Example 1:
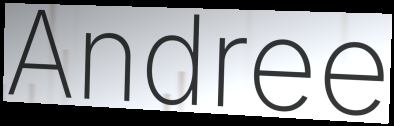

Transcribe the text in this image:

Andree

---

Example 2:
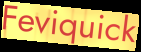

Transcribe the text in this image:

Feviquick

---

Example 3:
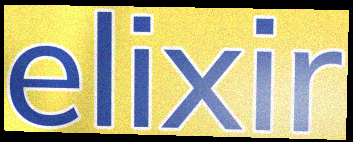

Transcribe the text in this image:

elixir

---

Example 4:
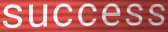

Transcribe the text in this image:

success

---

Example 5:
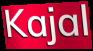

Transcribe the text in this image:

Kajal